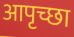
आपृच्छा